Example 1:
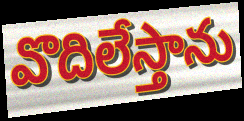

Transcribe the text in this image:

వొదిలేస్తాను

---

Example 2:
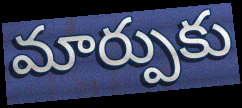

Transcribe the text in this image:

మార్పుకు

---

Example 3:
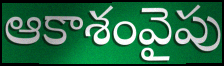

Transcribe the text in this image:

ఆకాశంవైపు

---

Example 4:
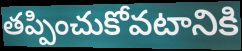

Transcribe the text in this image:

తప్పించుకోవటానికి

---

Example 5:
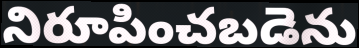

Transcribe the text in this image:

నిరూపించబడెను